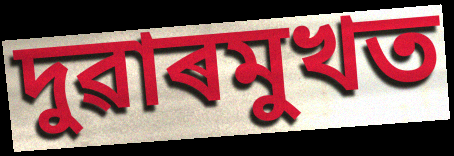
দুৱাৰমুখত